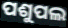
ପଶୁପଲ